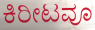
ಕಿರೀಟವೂ